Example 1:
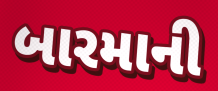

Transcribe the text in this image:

બારમાની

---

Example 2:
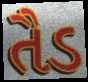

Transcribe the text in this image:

તૈડ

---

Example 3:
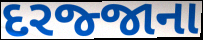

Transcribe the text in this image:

દરજ્જાના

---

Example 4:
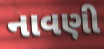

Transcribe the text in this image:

નાવણી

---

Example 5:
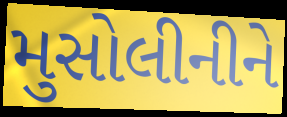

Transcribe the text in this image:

મુસોલીનીને